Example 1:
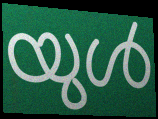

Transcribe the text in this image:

യുൾ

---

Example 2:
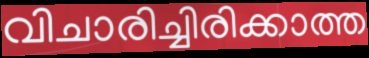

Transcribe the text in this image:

വിചാരിച്ചിരിക്കാത്ത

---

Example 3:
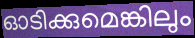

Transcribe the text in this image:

ഓടിക്കുമെങ്കിലും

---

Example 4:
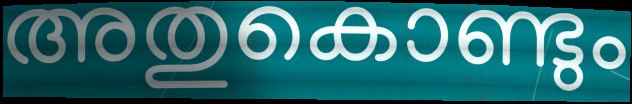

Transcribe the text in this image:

അതുകൊണ്ടും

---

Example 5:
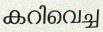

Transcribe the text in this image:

കറിവെച്ച